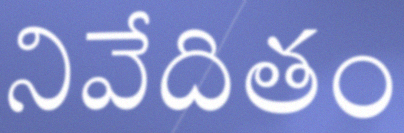
నివేదితం